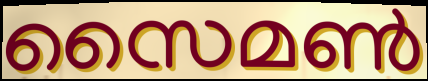
സൈമൺ